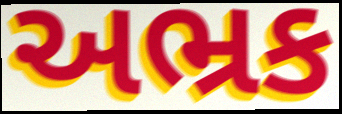
અભ્રક